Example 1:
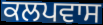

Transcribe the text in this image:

ਕਲਪਵਾਸ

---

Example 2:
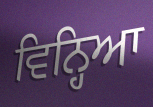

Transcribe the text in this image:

ਵਿਨ੍ਹਿਆ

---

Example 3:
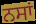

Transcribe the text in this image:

ਨਸਾਂ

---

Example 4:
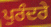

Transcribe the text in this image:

ਪੁਰੰਦਰੇ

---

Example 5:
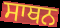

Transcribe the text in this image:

ਸਾਥਨ